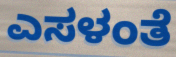
ಎಸಳಂತೆ